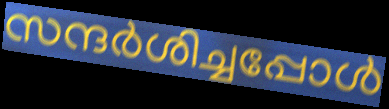
സന്ദർശിച്ചപ്പോൾ